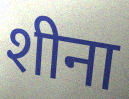
शीना